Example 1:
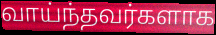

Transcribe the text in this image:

வாய்ந்தவர்களாக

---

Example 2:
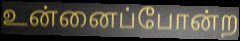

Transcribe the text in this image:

உன்னைப்போன்ற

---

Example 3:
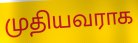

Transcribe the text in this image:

முதியவராக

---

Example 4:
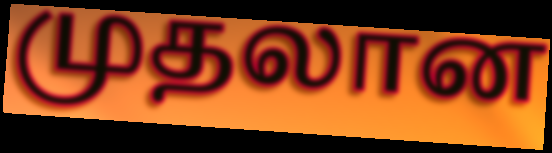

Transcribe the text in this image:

முதலான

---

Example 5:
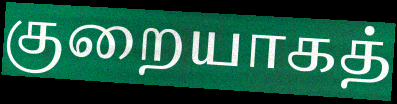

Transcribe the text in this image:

குறையாகத்